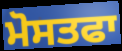
ਮੋਸਤਫਾ